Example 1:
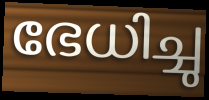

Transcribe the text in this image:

ഭേധിച്ചു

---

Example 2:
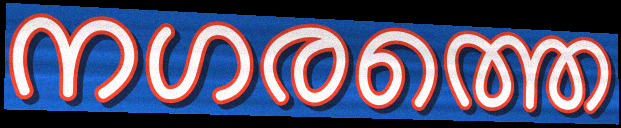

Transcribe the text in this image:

നഗരത്തെ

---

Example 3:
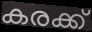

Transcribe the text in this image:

കരക്ക്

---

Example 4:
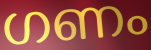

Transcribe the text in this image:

ഗണം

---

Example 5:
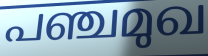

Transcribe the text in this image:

പഞ്ചമുഖ